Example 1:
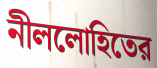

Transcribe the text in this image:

নীললোহিতের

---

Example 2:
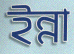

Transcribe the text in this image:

ইন্না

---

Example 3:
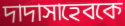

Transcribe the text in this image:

দাদাসাহেবকে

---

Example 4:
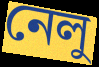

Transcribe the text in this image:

নেলু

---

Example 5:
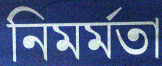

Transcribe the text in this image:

নিমর্মতা